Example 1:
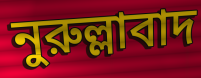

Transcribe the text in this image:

নুরুল্লাবাদ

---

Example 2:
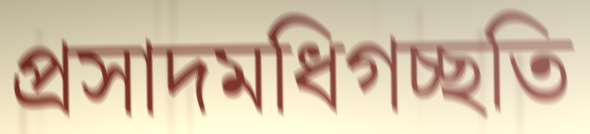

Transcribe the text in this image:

প্রসাদমধিগচ্ছতি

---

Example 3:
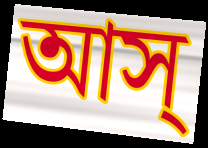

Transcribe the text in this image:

আস্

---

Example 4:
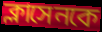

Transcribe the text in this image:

ক্লাসেনকে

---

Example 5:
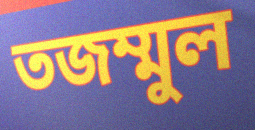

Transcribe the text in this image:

তজম্মুল